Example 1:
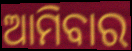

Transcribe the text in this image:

ଆମିବାର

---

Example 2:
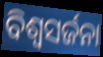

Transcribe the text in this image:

ବିଶ୍ଵସର୍ଜନା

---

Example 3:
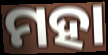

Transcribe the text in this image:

ମହା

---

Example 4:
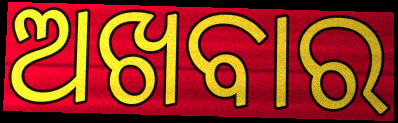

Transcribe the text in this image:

ଅଖବାର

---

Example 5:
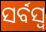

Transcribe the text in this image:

ସର୍ବସ୍ୱ